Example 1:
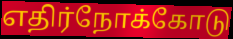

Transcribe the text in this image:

எதிர்நோக்கோடு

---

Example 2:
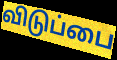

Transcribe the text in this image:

விடுப்பை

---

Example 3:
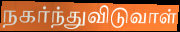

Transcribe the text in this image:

நகர்ந்துவிடுவாள்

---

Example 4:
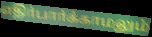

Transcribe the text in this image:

எதிர்பார்க்காமலும்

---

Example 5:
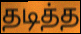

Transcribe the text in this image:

தடித்த